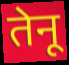
तेनू